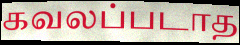
கவலப்படாத